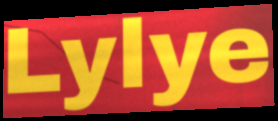
Lylye